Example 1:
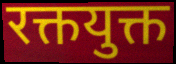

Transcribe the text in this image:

रक्तयुक्त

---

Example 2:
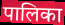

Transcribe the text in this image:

पालिका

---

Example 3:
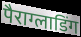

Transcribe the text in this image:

पैराग्लाडिंग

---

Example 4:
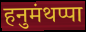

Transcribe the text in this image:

हनुमंथप्पा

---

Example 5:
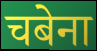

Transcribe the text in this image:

चबेना